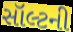
સૉલ્ટની